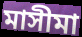
মাসীমা